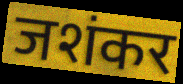
जशंकर